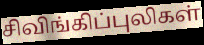
சிவிங்கிப்புலிகள்